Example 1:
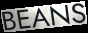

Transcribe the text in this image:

BEANS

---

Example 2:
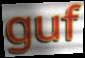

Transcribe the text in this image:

guf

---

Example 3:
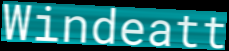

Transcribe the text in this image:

Windeatt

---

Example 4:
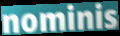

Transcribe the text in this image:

nominis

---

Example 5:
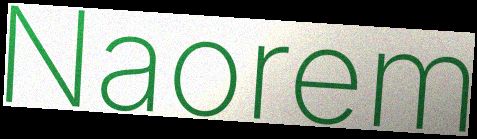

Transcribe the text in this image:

Naorem